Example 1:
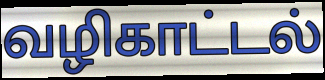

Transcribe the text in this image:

வழிகாட்டல்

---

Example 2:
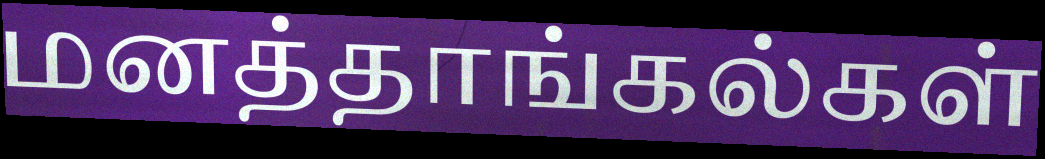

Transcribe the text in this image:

மனத்தாங்கல்கள்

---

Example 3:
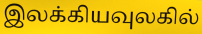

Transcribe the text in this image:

இலக்கியவுலகில்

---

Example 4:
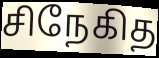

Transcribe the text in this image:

சிநேகித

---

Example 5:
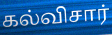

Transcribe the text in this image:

கல்விசார்